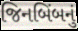
જિનબિંબનું